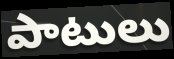
పాటులు